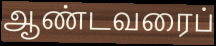
ஆண்டவரைப்